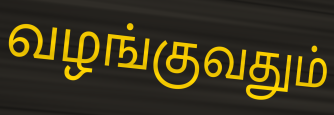
வழங்குவதும்